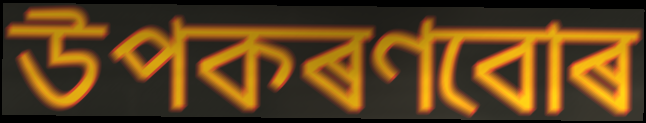
উপকৰণবোৰ